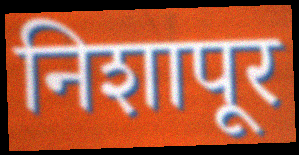
निशापूर